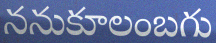
ననుకూలంబగు